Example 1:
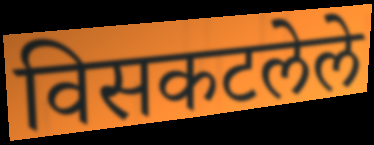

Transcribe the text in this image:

विसकटलेले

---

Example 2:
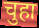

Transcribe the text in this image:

चुहा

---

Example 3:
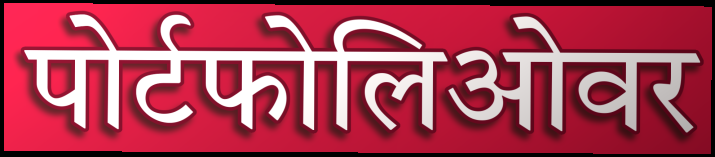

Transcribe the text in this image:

पोर्टफोलिओवर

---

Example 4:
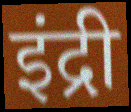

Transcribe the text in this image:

इंद्री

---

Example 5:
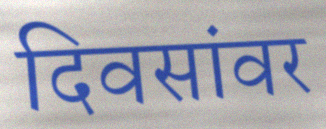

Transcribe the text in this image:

दिवसांवर